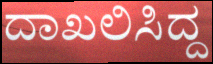
ದಾಖಲಿಸಿದ್ದ